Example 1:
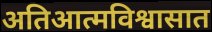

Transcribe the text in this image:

अतिआत्मविश्वासात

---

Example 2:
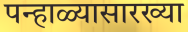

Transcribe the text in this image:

पन्हाळ्यासारख्या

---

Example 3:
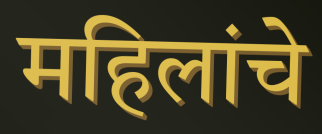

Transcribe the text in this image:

महिलांचे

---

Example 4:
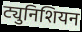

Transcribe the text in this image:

ट्युनिशियन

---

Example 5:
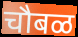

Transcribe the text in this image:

चौबळ